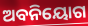
ଅବନିୟୋଗ